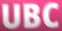
UBC